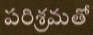
పరిశ్రమతో